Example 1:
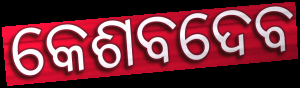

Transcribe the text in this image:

କେଶବଦେବ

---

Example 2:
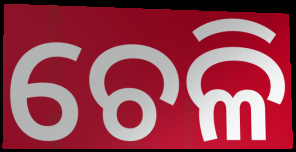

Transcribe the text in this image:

ଚେଳି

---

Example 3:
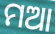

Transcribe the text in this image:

ମଆ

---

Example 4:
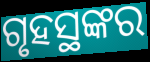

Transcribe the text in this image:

ଗୃହସ୍ଥଙ୍କର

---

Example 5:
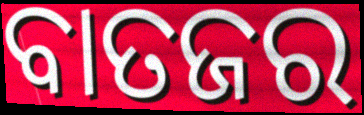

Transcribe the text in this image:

ବାତଜର